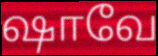
ஷாவே